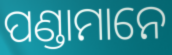
ପଣ୍ଡାମାନେ